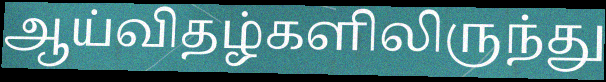
ஆய்விதழ்களிலிருந்து